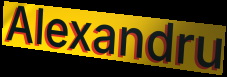
Alexandru